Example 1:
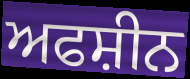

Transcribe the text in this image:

ਅਫਸ਼ੀਨ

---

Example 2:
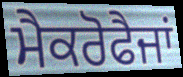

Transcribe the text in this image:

ਮੈਕਰੋਫੈਜਾਂ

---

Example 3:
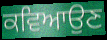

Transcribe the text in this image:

ਕਵਿਆਉਣ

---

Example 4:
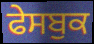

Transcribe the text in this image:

ਫੇਸਬੁਕ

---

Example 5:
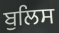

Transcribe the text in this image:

ਬੁਲਿਸ